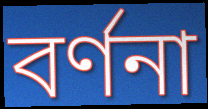
বর্ণনা